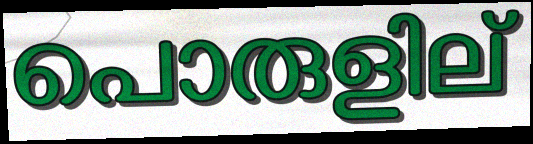
പൊരുളില്